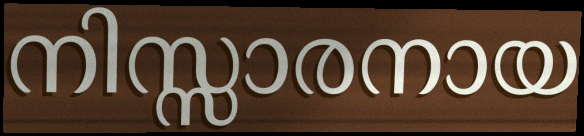
നിസ്സാരനായ